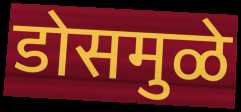
डोसमुळे